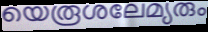
യെരൂശലേമ്യരും